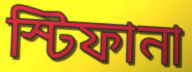
স্টিফানা